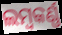
ଲମ୍ୱକର୍ଣ୍ଣ